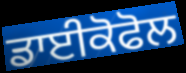
ਡਾਈਕੋਫੋਲ